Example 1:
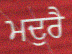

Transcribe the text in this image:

ਮਦੁਰੈ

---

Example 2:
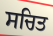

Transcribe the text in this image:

ਸਚਿਤ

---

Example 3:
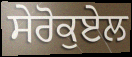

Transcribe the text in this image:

ਸੇਰੋਕੁਏਲ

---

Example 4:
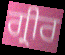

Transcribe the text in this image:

ਗ੍ਰੀਰ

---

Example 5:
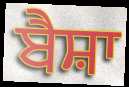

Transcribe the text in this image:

ਬੈਸ਼ਾ